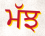
ਮੱਝ